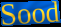
Sood